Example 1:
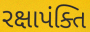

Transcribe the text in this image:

રક્ષાપંક્તિ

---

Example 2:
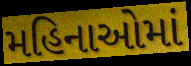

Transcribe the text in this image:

મહિનાઓમાં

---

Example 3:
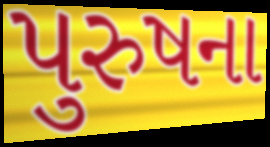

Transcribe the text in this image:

પુરુષના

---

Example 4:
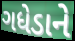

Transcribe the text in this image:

ગધેડાને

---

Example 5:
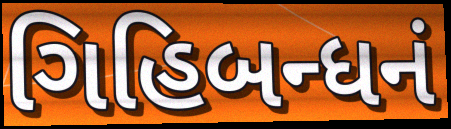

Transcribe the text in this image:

ગિહિબન્ધનં